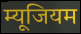
म्यूजियम